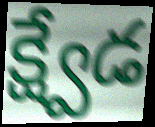
క్ష్వేడ